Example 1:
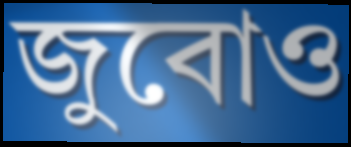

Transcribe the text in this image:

জুবোও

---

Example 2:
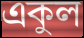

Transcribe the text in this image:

একুল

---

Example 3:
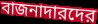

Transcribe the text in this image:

বাজনাদারদের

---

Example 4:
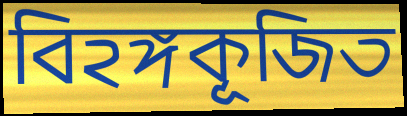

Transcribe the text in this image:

বিহঙ্গকূজিত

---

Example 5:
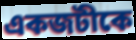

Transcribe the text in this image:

একজটীকে